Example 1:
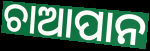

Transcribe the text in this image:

ଚାଆପାନ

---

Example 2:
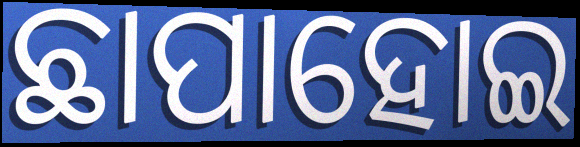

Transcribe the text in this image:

ଛାପାହୋଇ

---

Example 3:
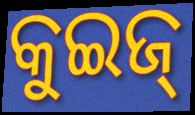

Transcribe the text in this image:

କୁଇଜ୍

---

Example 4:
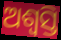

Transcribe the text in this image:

ଅଶ୍ୱସ୍ତି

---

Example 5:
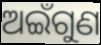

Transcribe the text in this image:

ଅଇଁଗୁଣ